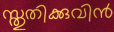
സ്തുതിക്കുവിൻ